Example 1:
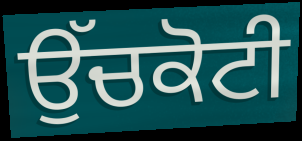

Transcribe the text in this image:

ਉੱਚਕੋਟੀ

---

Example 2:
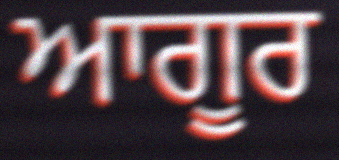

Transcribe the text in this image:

ਆਗੂਰ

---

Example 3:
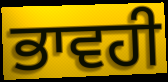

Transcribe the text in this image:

ਭਾਵਹੀ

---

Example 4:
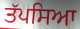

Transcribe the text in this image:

ਤੱਪਸਿਆ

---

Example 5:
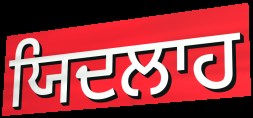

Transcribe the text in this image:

ਯਿਦਲਾਹ